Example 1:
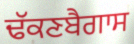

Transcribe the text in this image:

ਢੱਕਣਬੈਗਾਸ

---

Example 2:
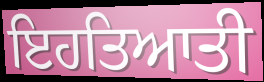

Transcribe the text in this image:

ਇਹਤਿਆਤੀ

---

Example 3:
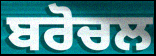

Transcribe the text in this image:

ਬਰੋਚਲ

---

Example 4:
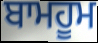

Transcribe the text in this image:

ਬਾਮਹੂਮ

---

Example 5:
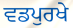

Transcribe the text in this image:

ਵਡਪੁਰਖੇ